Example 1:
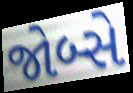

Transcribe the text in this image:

જોબ્સે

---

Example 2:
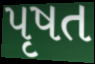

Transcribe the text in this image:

પૃષત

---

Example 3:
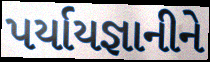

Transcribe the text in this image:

પર્યાયજ્ઞાનીને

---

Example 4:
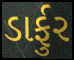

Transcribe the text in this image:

ડાર્ફુર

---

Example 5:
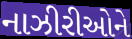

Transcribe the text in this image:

નાઝીરીઓને